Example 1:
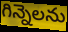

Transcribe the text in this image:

గిన్నెలను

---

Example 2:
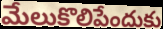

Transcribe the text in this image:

మేలుకొలిపేందుకు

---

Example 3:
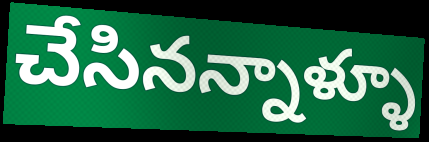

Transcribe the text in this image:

చేసినన్నాళ్ళూ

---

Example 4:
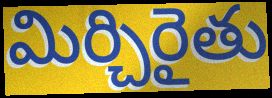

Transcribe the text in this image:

మిర్చిరైతు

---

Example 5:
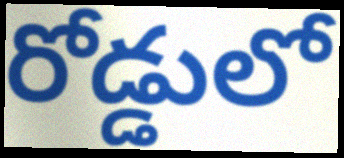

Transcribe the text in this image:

రోడ్డులో